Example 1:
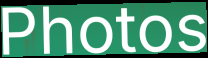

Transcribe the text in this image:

Photos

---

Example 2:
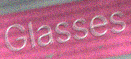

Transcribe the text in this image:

Glasses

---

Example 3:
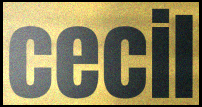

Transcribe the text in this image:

cecil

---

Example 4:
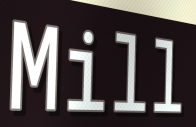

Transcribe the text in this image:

Mill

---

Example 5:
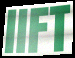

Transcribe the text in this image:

IIFT